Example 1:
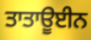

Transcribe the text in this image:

ਤਾਤਾਊਈਨ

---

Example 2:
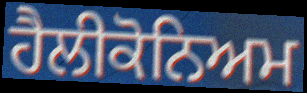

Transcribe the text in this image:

ਹੈਲੀਕੋਨਿਅਮ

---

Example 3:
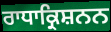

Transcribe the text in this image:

ਰਾਧਾਕ੍ਰਿਸ਼ਨਨ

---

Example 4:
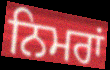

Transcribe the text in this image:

ਨਿਮਰਾਂ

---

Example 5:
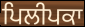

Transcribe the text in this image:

ਪਿਲੀਪਕਾ